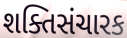
શક્તિસંચારક